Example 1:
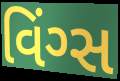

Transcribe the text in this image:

વિંગ્સ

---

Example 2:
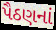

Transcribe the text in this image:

પૈઠણનાં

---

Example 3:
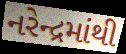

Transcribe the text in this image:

નરેન્દ્રમાંથી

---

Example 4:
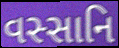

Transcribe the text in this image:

વસ્સાનિ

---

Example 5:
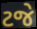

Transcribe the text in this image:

ટજે